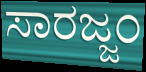
ಸಾರಜ್ಜಂ